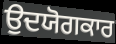
ਉਦਯੋਗਕਾਰ